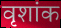
वृशांक